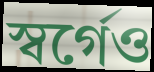
স্বর্গেও